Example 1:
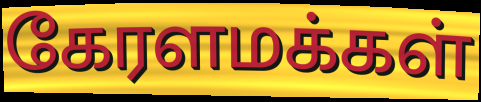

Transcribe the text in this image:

கேரளமக்கள்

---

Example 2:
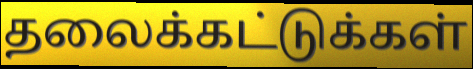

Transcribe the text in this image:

தலைக்கட்டுக்கள்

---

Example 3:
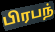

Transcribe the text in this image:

பிரபந்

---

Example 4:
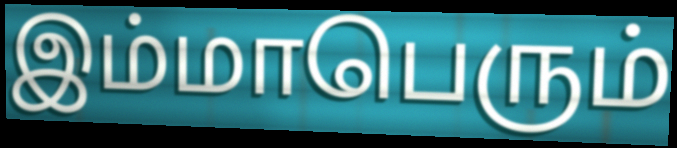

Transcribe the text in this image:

இம்மாபெரும்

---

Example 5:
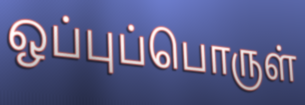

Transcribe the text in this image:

ஒப்புப்பொருள்